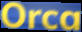
Orca